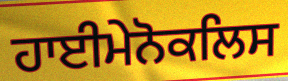
ਹਾਈਮੇਨੋਕਲਿਸ